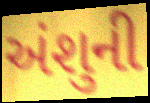
અંશુની